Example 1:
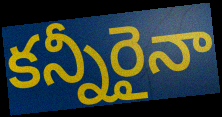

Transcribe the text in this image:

కన్నీరైనా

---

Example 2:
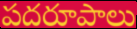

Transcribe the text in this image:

పదరూపాలు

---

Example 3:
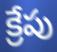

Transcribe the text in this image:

క్రేపు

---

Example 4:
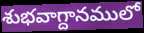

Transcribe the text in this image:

శుభవాగ్దానములో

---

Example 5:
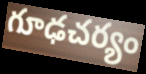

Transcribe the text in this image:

గూఢచర్యం